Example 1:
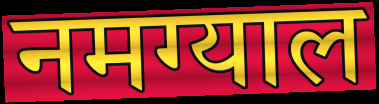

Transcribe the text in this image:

नमग्याल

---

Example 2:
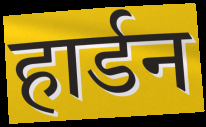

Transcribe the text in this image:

हार्डन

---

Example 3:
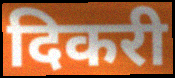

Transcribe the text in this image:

दिकरी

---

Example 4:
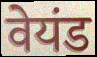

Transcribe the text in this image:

वेयंड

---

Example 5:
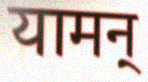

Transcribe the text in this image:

यामन्